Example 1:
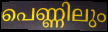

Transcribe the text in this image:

പെണ്ണിലും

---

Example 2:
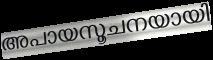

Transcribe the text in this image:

അപായസൂചനയായി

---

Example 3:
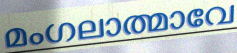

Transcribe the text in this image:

മംഗലാത്മാവേ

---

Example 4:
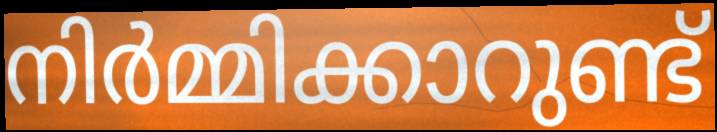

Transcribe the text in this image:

നിർമ്മിക്കാറുണ്ട്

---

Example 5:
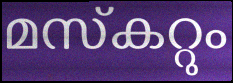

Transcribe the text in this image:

മസ്‌കറ്റും